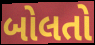
બોલતો